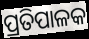
ପ୍ରତିପାଳକ